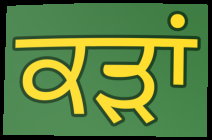
ਕੜਾਂ